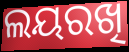
ଲୟରଖି